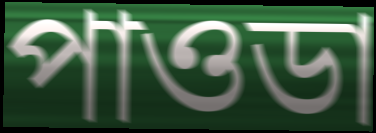
পাওডা